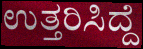
ಉತ್ತರಿಸಿದ್ದೆ